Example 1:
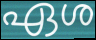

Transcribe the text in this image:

ഏശ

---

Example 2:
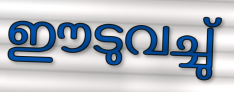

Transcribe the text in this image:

ഈടുവച്ചു്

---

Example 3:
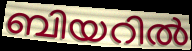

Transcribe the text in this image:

ബിയറിൽ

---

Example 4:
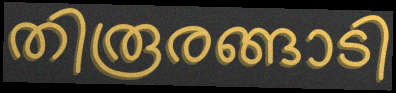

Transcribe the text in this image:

തിരൂരങ്ങാടി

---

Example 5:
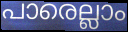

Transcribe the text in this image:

പാരെല്ലാം